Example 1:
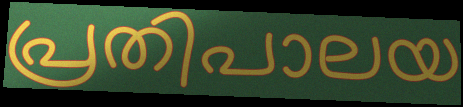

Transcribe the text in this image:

പ്രതിപാലയ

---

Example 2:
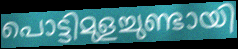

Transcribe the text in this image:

പൊട്ടിമുളച്ചുണ്ടായി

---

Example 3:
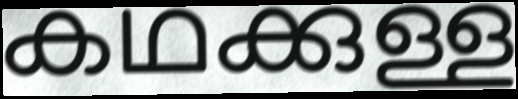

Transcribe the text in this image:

കഥക്കുള്ള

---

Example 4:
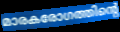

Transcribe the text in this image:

മാരകരോഗത്തിന്റെ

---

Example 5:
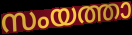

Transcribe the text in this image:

സംയത്താ